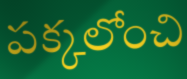
పక్కలోంచి